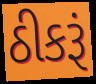
ઠીકરૂં